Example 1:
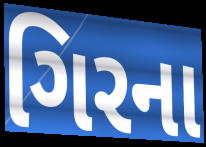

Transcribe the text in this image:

ગિરના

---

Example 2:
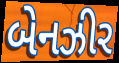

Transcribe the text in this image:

બેનઝીર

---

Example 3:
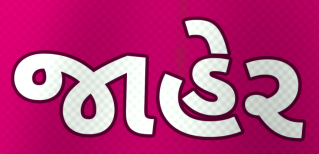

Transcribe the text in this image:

જાહેર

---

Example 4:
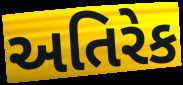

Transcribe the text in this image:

અતિરેક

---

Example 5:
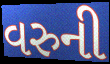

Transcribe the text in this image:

વરુની